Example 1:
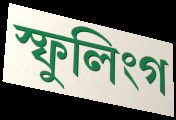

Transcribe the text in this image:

স্ফুলিংগ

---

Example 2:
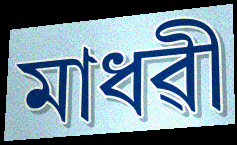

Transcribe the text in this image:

মাধৱী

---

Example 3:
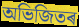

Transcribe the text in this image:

অভিজিতৰ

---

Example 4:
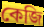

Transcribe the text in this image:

কেজি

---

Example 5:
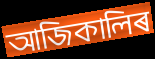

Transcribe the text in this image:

আজিকালিৰ